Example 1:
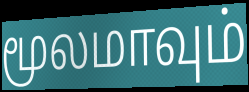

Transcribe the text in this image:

மூலமாவும்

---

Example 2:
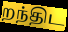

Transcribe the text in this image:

றந்திட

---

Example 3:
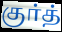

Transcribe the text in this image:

குர்த்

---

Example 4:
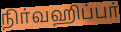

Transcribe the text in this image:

நிர்வஹிப்பர்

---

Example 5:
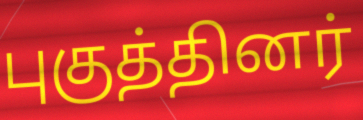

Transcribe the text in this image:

புகுத்தினர்